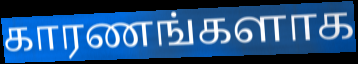
காரணங்களாக